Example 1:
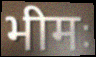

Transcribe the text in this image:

भीमः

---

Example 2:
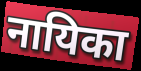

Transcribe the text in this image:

नायिका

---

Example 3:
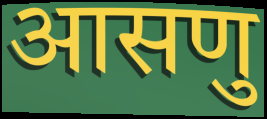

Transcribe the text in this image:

आसणु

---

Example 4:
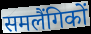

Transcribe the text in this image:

समलैंगिकों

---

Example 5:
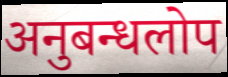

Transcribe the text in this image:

अनुबन्धलोप